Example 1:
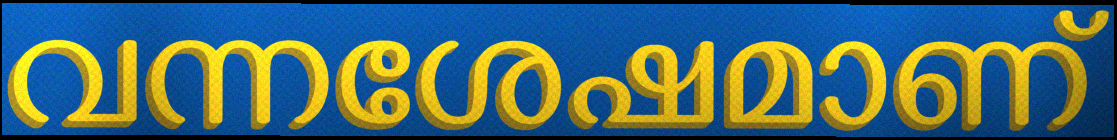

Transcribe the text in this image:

വന്നശേഷമാണ്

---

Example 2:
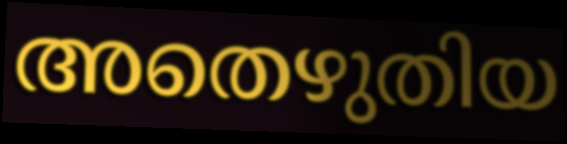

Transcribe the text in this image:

അതെഴുതിയ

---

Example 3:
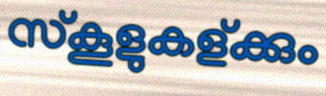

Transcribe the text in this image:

സ്കൂളുകള്ക്കും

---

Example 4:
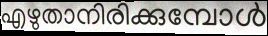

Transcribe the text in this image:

എഴുതാനിരിക്കുമ്പോൾ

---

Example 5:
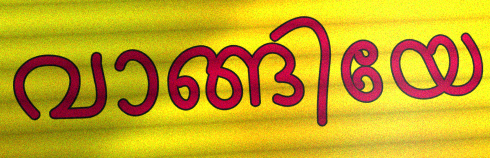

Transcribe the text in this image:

വാങ്ങിയേ